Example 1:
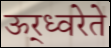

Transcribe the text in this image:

ऊर्ध्वरेते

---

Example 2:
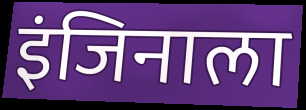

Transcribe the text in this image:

इंजिनाला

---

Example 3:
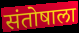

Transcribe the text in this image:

संतोषाला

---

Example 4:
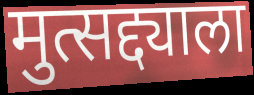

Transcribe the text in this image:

मुत्सद्द्याला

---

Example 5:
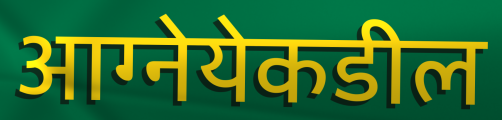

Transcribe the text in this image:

आग्नेयेकडील